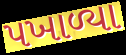
પખાળ્યા